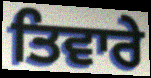
ਤਿਵਾਰੇ